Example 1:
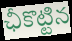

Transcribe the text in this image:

ఛీకొట్టిన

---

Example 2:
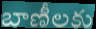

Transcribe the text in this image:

బాణీలకు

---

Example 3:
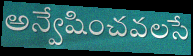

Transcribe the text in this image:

అన్వేషించవలసే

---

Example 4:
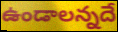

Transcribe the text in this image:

ఉండాలన్నదే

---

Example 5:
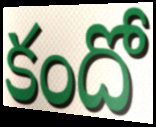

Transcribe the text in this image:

కందో